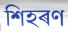
শিহৰণ